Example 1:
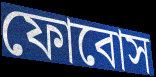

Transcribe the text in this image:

ফোবোস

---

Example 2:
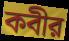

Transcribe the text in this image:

কবীর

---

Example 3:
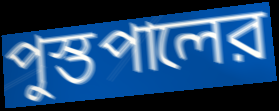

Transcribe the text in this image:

পুস্তপালের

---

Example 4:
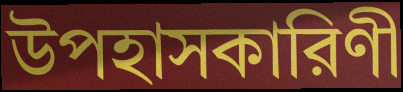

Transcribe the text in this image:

উপহাসকারিণী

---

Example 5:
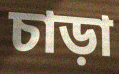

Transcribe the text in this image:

চাড়া